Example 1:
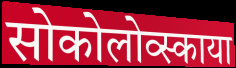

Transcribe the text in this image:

सोकोलोव्स्काया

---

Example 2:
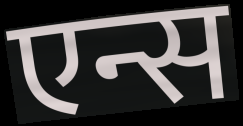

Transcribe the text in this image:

एन्स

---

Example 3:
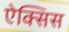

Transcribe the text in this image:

ऐक्सिस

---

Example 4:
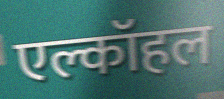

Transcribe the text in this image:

एल्कॉहल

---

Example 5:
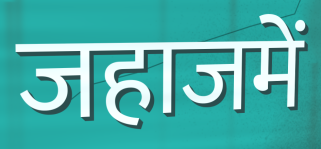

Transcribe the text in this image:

जहाजमें